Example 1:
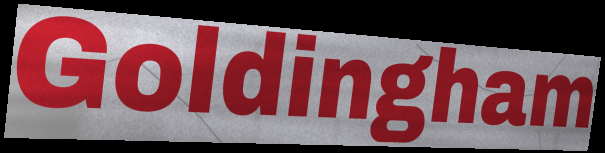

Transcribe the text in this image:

Goldingham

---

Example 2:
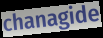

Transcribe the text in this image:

chanagide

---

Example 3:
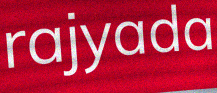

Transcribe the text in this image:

rajyada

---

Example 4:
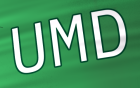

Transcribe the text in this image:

UMD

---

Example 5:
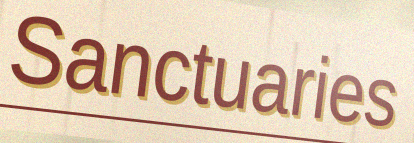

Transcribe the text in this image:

Sanctuaries